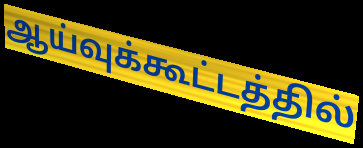
ஆய்வுக்கூட்டத்தில்